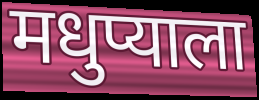
मधुप्याला